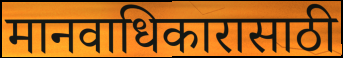
मानवाधिकारासाठी